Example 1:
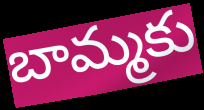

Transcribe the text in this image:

బామ్మకు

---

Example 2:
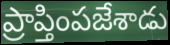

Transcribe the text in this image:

ప్రాప్తింపజేశాడు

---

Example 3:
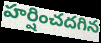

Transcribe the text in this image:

హర్షించదగిన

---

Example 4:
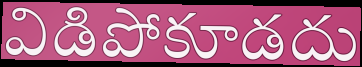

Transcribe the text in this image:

విడిపోకూడదు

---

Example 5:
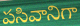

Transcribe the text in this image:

పసివానిగా